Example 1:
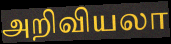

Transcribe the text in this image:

அறிவியலா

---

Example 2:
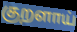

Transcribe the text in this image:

குறளாய்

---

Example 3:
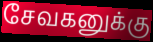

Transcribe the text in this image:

சேவகனுக்கு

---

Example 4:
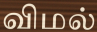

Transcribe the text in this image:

விமல்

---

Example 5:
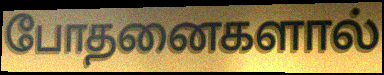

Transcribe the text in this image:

போதனைகளால்